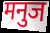
मनुज